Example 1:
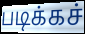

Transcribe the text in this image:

படிக்கச்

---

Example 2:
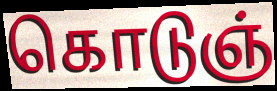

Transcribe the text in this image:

கொடுஞ்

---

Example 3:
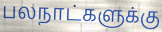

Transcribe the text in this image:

பலநாட்களுக்கு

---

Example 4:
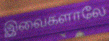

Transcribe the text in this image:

இவைகளாலே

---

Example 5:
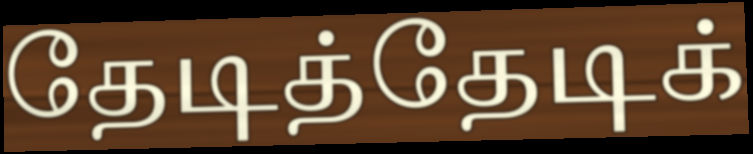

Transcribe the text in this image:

தேடித்தேடிக்